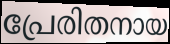
പ്രേരിതനായ